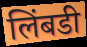
लिंबडी